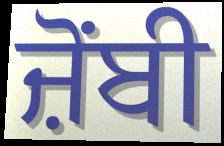
ਜ਼ੋਂਬੀ